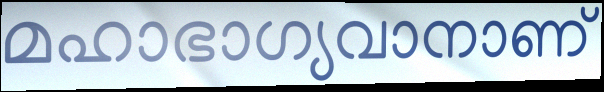
മഹാഭാഗ്യവാനാണ്